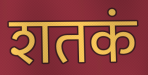
शतकं